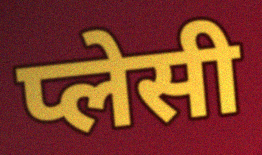
प्लेसी